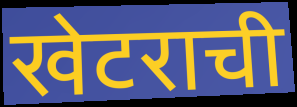
खेटराची